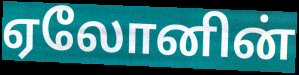
ஏலோனின்